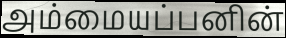
அம்மையப்பனின்